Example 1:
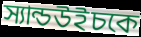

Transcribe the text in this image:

স্যান্ডউইচকে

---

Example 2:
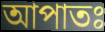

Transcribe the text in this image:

আপাতঃ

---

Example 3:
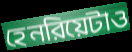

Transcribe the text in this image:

হেনরিয়েটাও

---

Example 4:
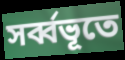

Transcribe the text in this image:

সর্ব্বভূতে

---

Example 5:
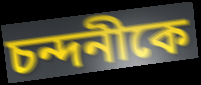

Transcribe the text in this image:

চন্দনীকে